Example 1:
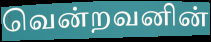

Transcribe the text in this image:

வென்றவனின்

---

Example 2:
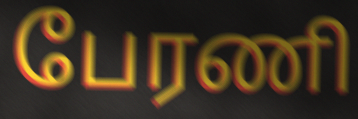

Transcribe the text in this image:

பேரணி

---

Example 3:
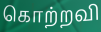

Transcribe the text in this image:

கொற்றவி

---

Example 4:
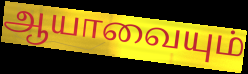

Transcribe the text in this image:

ஆயாவையும்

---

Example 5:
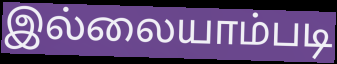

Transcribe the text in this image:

இல்லையாம்படி